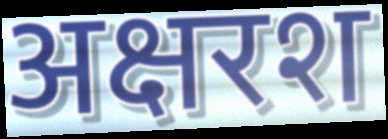
अक्षरश